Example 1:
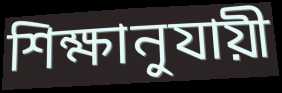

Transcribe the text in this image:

শিক্ষানুযায়ী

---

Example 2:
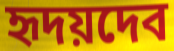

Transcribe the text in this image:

হৃদয়দেব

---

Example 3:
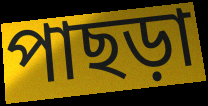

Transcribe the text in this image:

পাছড়া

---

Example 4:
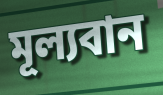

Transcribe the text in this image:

মূল্যবান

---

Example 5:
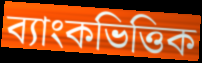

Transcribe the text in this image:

ব্যাংকভিত্তিক